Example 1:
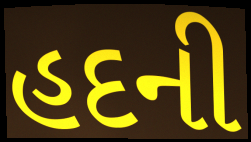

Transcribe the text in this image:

હદની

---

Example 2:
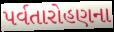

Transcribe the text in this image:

પર્વતારોહણના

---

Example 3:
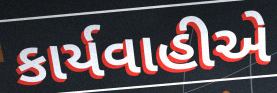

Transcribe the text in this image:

કાર્યવાહીએ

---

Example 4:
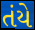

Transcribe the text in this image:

તંયે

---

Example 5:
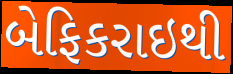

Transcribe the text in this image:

બેફિકરાઇથી